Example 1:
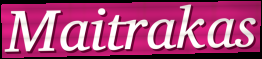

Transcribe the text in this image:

Maitrakas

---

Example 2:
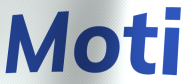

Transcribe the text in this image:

Moti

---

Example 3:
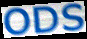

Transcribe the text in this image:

ODS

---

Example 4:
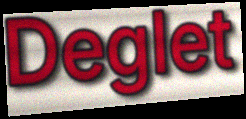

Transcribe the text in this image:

Deglet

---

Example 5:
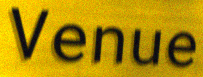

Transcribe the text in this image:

Venue